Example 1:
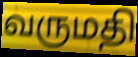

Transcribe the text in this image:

வருமதி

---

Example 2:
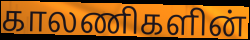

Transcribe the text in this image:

காலணிகளின்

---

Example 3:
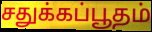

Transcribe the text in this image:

சதுக்கப்பூதம்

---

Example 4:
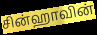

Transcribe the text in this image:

சின்ஹாவின்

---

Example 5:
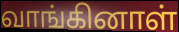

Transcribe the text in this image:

வாங்கினாள்